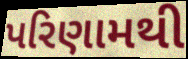
પરિણામથી